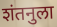
शंतनुला